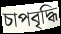
চাপবৃদ্ধি